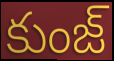
కుంజ్